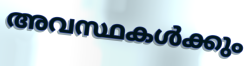
അവസ്ഥകൾക്കും